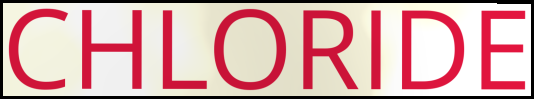
CHLORIDE